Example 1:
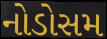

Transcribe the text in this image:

નોડોસમ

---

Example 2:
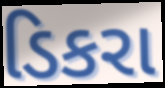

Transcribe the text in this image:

ડિકરા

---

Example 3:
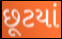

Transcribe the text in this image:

છૂટયાં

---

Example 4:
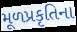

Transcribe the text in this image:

મૂળપ્રકૃતિના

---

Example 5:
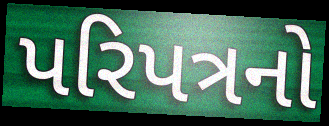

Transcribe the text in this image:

પરિપત્રનો